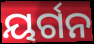
ୟର୍ଗନ